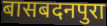
बासबदनपुरा